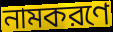
নামকরণে